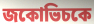
জকোভিচকে